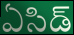
ఏసిడ్